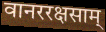
वानररक्षसाम्